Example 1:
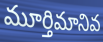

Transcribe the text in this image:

మూర్తిమానివ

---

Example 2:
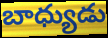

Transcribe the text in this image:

బాధ్యుడు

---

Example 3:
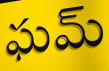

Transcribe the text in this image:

ఘమ్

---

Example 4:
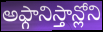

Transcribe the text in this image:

అఫ్గానిస్తాన్లోని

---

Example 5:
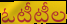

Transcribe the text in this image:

ఓటీటీల